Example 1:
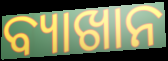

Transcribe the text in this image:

ବ୍ୟାଖାନ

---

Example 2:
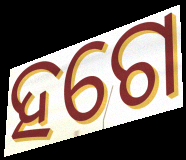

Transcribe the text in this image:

ହଗେ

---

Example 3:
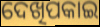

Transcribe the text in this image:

ଦେଖିପକାଇ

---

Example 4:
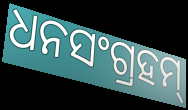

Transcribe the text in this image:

ଧନସଂଗ୍ରହମ୍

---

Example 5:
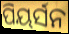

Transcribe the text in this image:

ପିୟର୍ସନ